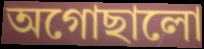
অগোছালো